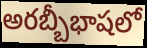
అరబ్బీభాషలో